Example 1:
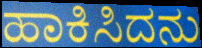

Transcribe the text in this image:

ಹಾಕಿಸಿದನು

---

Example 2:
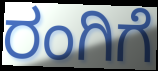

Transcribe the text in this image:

ರಂಗಿಗೆ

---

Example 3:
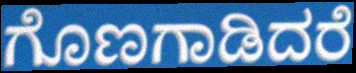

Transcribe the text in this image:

ಗೊಣಗಾಡಿದರೆ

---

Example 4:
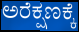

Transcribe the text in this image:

ಅರೆಕ್ಷಣಕ್ಕೆ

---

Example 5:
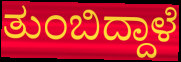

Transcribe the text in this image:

ತುಂಬಿದ್ದಾಳೆ